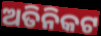
ଅତିନିକଟ